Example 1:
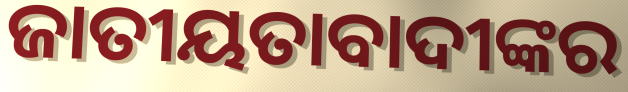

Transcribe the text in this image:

ଜାତୀୟତାବାଦୀଙ୍କର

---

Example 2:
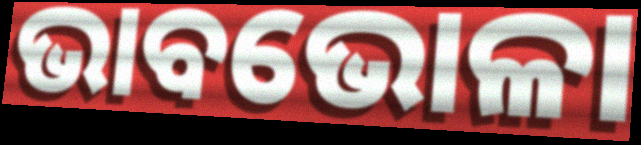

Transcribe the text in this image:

ଭାବଭୋଳା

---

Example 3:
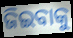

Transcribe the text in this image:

ଜିଇବାକୁ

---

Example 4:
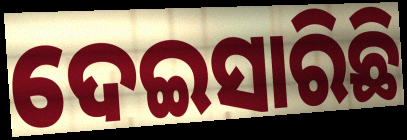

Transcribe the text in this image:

ଦେଇସାରିଛି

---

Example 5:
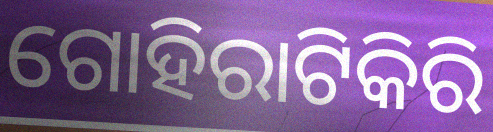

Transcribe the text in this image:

ଗୋହିରାଟିକିରି